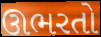
ઊભરતો